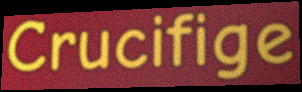
Crucifige